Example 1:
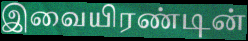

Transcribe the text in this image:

இவையிரண்டின்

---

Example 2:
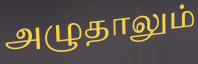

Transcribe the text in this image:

அழுதாலும்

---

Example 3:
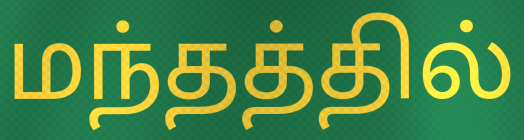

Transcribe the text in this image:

மந்தத்தில்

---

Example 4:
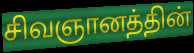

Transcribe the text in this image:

சிவஞானத்தின்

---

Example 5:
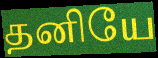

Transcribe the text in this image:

தனியே